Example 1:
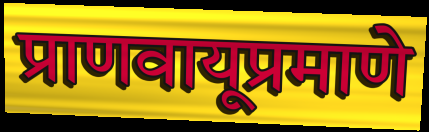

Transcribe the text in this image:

प्राणवायूप्रमाणे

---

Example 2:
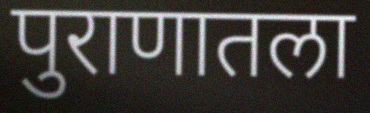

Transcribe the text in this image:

पुराणातला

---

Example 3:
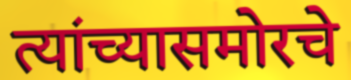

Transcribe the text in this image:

त्यांच्यासमोरचे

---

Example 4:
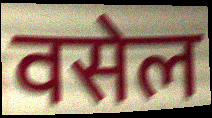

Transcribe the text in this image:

वसेल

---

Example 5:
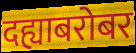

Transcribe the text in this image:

दह्याबरोबर